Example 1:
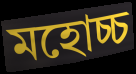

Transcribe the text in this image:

মহোচ্চ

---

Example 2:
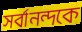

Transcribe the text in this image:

সর্বানন্দকে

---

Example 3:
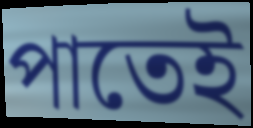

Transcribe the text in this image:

পাতেই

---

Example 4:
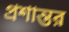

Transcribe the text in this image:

প্রশান্তর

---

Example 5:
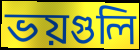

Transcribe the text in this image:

ভয়গুলি